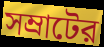
সম্রাটের